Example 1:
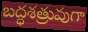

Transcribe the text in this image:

బద్ధశత్రువుగా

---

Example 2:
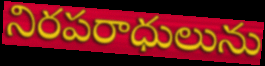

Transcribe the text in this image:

నిరపరాధులును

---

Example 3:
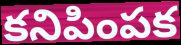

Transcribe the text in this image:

కనిపింపక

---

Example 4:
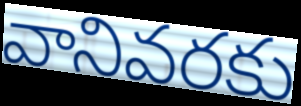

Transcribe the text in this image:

వానివరకు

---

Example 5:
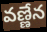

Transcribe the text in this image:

వణ్ణేన